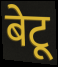
बेटू